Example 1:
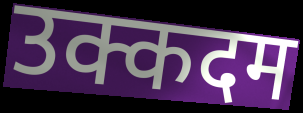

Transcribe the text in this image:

उक्कदम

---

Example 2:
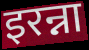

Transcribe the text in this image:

इरन्ना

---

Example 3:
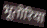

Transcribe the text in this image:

भूतोरिया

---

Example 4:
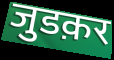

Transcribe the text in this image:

जुडक़र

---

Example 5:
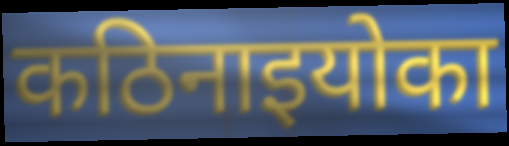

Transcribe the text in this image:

कठिनाइयोका